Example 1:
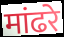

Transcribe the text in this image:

मांढरे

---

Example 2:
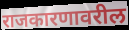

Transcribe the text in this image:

राजकारणावरील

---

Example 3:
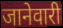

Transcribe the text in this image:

जानेवारी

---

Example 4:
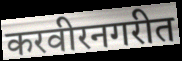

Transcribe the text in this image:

करवीरनगरीत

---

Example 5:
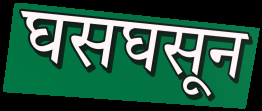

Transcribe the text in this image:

घसघसून